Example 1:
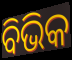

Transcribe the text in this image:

ବିଭିକ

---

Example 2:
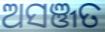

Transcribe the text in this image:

ଅସଞ୍ଜତ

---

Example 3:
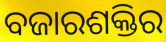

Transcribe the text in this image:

ବଜାରଶକ୍ତିର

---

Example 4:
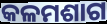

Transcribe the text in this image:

କଳମଶାଗ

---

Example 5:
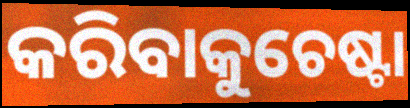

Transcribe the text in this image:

କରିବାକୁଚେଷ୍ଟା